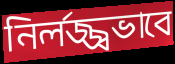
নির্লজ্জ্বভাবে